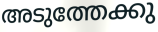
അടുത്തേക്കു